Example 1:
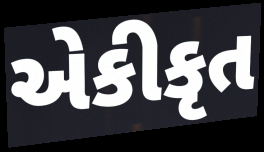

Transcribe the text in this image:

એકીકૃત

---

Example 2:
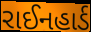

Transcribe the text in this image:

રાઈનહાર્ડ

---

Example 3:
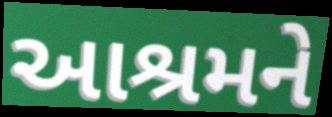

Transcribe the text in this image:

આશ્રમને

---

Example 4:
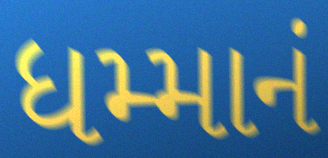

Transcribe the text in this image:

ધમ્માનં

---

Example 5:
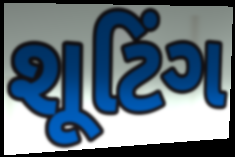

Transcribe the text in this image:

શૂટિંગ